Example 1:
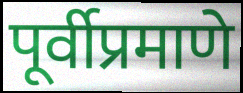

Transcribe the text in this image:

पूर्वीप्रमाणे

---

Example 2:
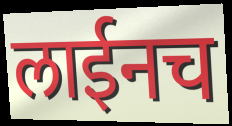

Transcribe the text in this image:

लाईनच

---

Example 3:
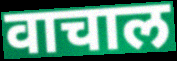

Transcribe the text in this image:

वाचाल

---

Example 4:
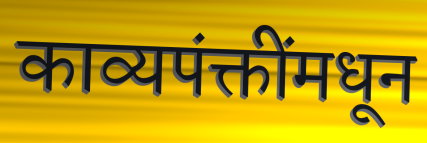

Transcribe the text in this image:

काव्यपंक्तींमधून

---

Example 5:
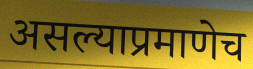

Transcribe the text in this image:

असल्याप्रमाणेच